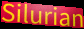
Silurian